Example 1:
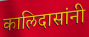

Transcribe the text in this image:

कालिदासांनी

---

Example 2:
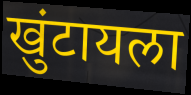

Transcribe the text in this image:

खुंटायला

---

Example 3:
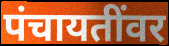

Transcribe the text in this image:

पंचायतींवर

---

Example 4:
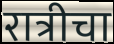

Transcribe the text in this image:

रात्रीचा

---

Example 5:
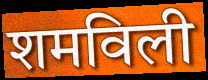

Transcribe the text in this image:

शमविली